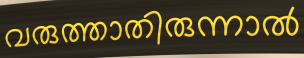
വരുത്താതിരുന്നാൽ